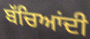
ਬੱਚਿਆਂਦੀ